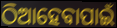
ଠିଆହେବାପାଇଁ